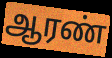
ஆரண்